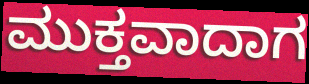
ಮುಕ್ತವಾದಾಗ